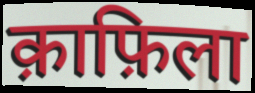
क़ाफ़िला